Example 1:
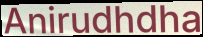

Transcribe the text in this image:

Anirudhdha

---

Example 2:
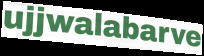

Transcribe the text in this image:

ujjwalabarve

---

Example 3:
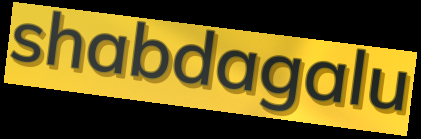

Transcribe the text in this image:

shabdagalu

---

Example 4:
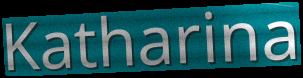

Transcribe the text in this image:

Katharina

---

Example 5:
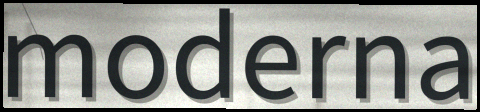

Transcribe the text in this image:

moderna